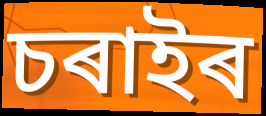
চৰাইৰ